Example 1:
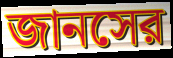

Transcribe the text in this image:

জানসের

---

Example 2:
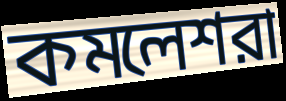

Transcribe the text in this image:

কমলেশরা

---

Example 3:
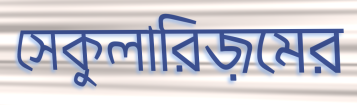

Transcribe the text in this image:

সেকুলারিজ়মের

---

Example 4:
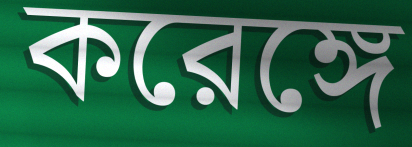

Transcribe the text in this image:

করেঙ্গে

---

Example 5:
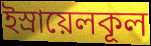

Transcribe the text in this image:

ইস্রায়েলকূল